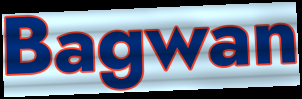
Bagwan